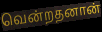
வென்றதனான்